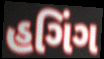
હગિંગ